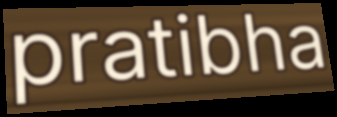
pratibha